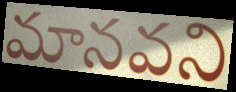
మానవని